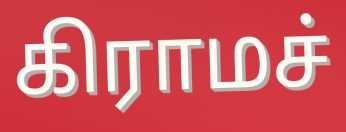
கிராமச்